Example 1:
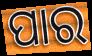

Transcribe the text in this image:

ପାର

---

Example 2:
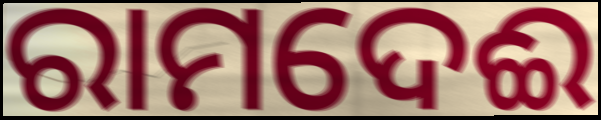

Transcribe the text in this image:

ରାମଦେଈ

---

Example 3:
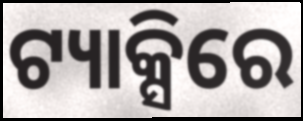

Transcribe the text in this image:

ଟ୍ୟାକ୍ସିରେ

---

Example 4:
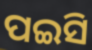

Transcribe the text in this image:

ପଇସି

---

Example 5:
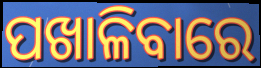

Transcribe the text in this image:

ପଖାଳିବାରେ